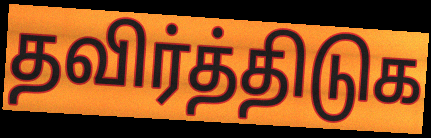
தவிர்த்திடுக